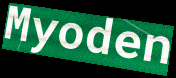
Myoden